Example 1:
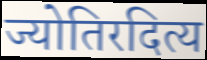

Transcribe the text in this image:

ज्योतिरदित्य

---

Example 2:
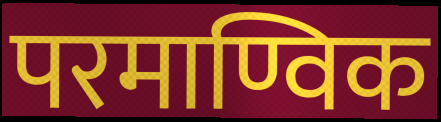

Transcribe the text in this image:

परमाण्विक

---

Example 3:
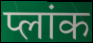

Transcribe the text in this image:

प्लांक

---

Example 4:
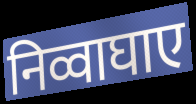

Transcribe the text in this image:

निव्वाघाए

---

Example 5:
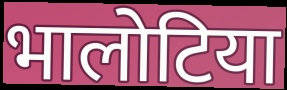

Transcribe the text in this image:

भालोटिया